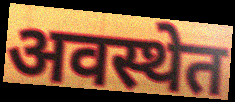
अवस्थेत